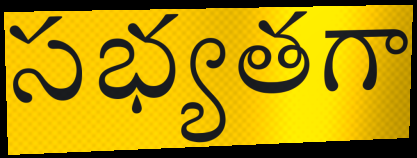
సభ్యతగా